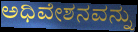
ಅಧಿವೇಶನವನ್ನು